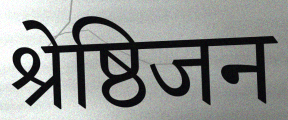
श्रेष्ठिजन